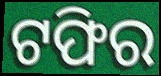
ଟଫିର